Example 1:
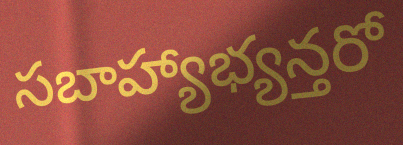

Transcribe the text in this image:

సబాహ్యాభ్యన్తరో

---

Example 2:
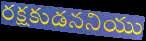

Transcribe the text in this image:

రక్షకుడననియు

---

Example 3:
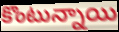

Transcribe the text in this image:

కొంటున్నాయి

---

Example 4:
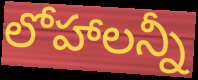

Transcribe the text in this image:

లోహాలన్నీ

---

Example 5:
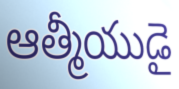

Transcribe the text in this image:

ఆత్మీయుడై